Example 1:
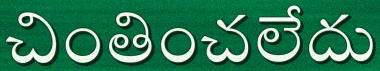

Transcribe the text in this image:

చింతించలేదు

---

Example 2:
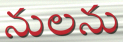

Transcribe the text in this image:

నులను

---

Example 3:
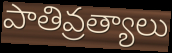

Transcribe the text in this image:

పాతివ్రత్యాలు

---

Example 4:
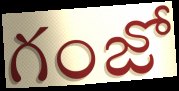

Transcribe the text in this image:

గంజో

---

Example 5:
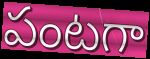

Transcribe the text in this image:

పంటగా